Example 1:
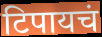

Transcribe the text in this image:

टिपायचं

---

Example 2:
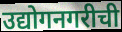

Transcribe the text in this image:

उद्योगनगरीची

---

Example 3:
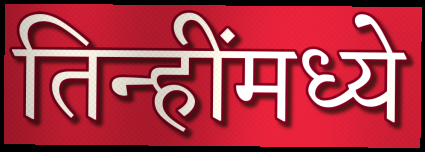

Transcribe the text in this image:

तिन्हींमध्ये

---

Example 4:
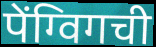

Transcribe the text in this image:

पेंग्विगची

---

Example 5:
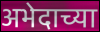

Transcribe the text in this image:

अभेदाच्या